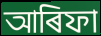
আৰিফা